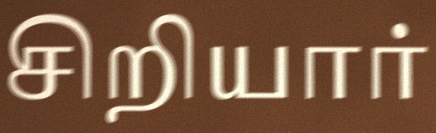
சிறியார்